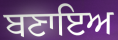
ਬਣਾਇਅ